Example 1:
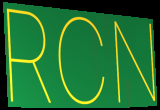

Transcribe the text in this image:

RCN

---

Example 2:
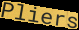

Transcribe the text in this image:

Pliers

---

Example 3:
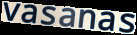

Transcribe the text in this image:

vasanas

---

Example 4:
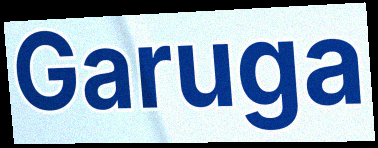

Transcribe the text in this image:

Garuga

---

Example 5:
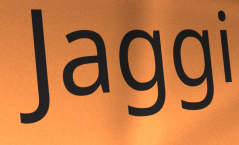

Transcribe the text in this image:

Jaggi